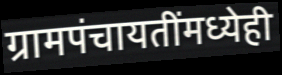
ग्रामपंचायतींमध्येही